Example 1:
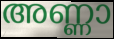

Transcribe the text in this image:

അണ്ണാ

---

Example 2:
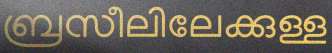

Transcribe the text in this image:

ബ്രസീലിലേക്കുള്ള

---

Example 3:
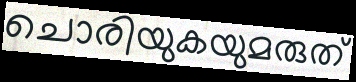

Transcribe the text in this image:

ചൊരിയുകയുമരുത്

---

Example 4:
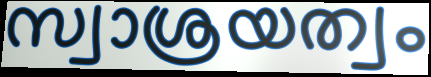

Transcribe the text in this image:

സ്വാശ്രയത്വം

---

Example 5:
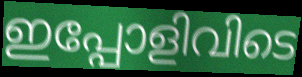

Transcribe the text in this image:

ഇപ്പോളിവിടെ